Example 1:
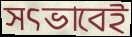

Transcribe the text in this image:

সৎভাবেই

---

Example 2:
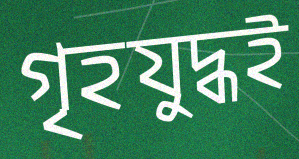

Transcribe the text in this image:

গৃহযুদ্ধই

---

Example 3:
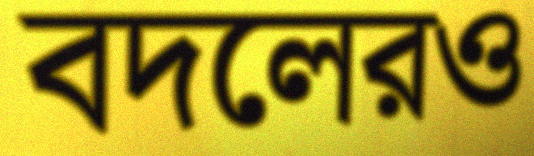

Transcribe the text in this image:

বদলেরও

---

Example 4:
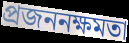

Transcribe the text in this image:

প্রজননক্ষমতা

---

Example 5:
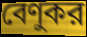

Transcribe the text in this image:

বেণুকর